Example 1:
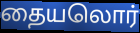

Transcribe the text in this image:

தையலொர்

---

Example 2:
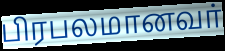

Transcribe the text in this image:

பிரபலமானவர்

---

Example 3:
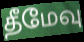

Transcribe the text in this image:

தீமேவு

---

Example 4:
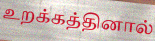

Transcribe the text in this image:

உறக்கத்தினால்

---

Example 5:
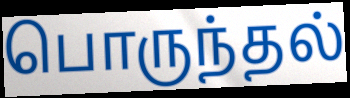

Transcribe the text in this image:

பொருந்தல்